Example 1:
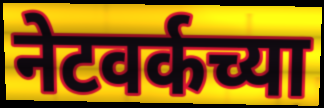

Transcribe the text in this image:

नेटवर्कच्या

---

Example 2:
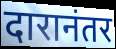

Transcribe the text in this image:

दारानंतर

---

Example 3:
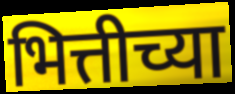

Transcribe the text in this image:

भित्तीच्या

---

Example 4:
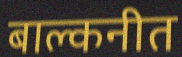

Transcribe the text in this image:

बाल्कनीत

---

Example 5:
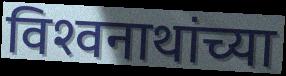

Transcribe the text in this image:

विश्वनाथांच्या